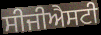
ਸੀਜੀਐਸਟੀ